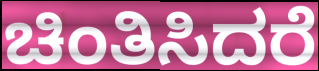
ಚಿಂತಿಸಿದರೆ